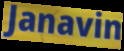
Janavin